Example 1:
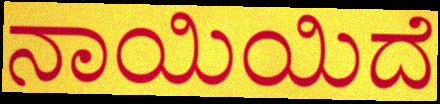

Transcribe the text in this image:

ನಾಯಿಯಿದೆ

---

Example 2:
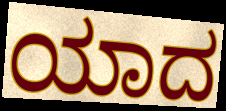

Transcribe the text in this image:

ಯಾದ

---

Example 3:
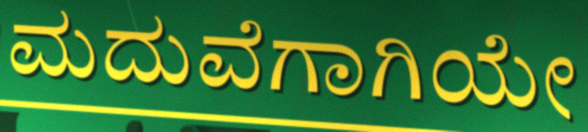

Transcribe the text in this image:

ಮದುವೆಗಾಗಿಯೇ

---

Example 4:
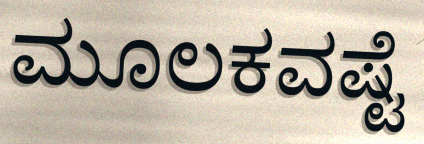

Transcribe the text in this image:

ಮೂಲಕವಷ್ಟೆ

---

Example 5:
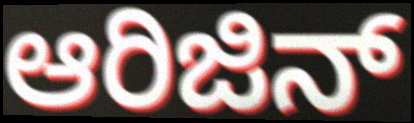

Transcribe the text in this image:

ಆರಿಜಿನ್